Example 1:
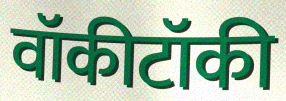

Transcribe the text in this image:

वॉकीटॉकी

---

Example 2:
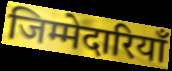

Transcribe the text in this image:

जिम्मेदारियाँ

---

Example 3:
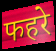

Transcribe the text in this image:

फहरे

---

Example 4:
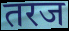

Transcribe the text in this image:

तरज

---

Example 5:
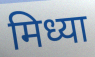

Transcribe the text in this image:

मिध्या